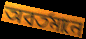
অবর্তমানে